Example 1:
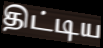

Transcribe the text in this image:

திட்டிய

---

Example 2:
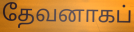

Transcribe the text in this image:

தேவனாகப்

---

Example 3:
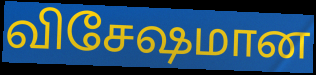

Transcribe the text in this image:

விசேஷமான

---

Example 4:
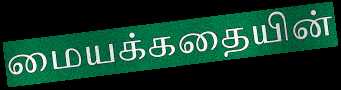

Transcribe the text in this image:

மையக்கதையின்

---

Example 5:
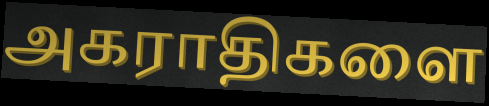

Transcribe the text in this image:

அகராதிகளை